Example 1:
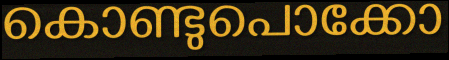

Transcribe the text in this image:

കൊണ്ടുപൊക്കോ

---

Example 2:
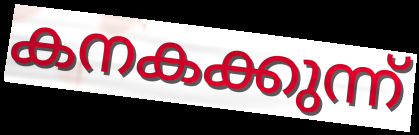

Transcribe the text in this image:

കനകക്കുന്ന്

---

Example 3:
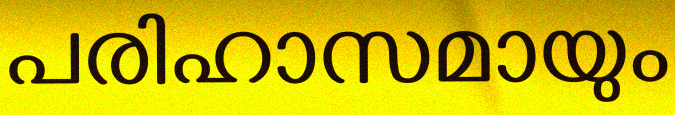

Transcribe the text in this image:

പരിഹാസമായും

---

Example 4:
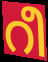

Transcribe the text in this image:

റീ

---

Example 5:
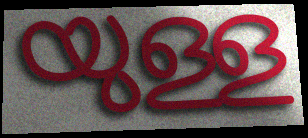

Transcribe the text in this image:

യുള്ള